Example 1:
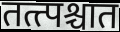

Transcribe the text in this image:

तत्त्पश्चात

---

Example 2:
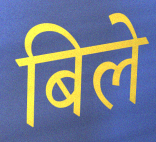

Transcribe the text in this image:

बिले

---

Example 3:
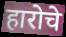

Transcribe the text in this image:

हारोचे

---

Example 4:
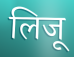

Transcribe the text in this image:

लिजू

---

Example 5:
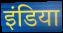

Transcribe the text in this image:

इंडिया